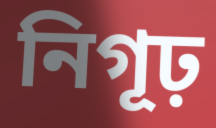
নিগূঢ়